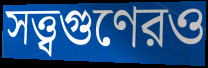
সত্ত্বগুণেরও